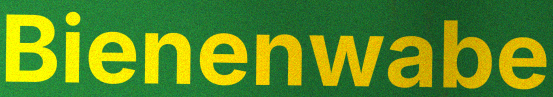
Bienenwabe